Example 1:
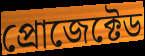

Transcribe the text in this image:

প্রোজেক্টেড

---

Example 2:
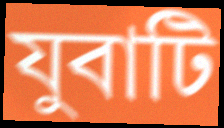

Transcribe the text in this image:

যুবাটি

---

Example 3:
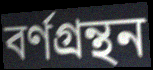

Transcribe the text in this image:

বর্ণগ্রন্থন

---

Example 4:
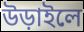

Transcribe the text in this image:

উড়াইলে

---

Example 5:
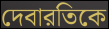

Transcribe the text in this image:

দেবারতিকে